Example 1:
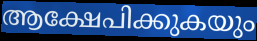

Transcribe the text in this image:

ആക്ഷേപിക്കുകയും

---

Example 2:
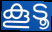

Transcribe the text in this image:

കൂടൂ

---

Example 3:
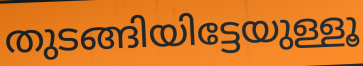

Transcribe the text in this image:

തുടങ്ങിയിട്ടേയുള്ളൂ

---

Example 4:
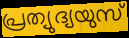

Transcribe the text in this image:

പ്രത്യുദ്യയുസ്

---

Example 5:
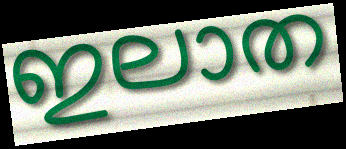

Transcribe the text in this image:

ഇലാത